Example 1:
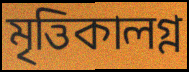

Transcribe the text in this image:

মৃত্তিকালগ্ন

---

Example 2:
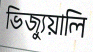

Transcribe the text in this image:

ভিজ্যুয়ালি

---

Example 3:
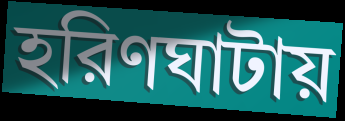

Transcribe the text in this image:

হরিণঘাটায়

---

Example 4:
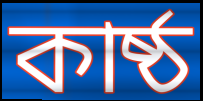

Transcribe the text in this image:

কাষ্ঠ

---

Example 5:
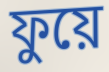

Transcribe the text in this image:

ফুয়ে